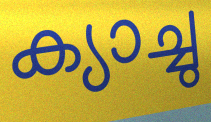
ക്യാച്ചു